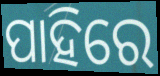
ପାହିରେ